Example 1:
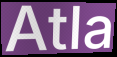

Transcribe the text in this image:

Atla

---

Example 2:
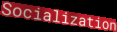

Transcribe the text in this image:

Socialization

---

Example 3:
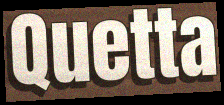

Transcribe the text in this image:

Quetta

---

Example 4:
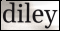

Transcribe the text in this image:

diley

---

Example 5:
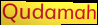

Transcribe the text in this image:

Qudamah